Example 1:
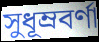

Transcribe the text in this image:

সুধূম্রবর্ণা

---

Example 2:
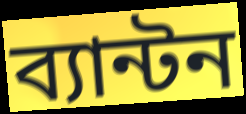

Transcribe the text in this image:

ব্যান্টন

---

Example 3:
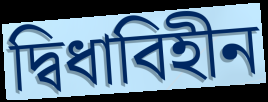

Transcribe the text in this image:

দ্বিধাবিহীন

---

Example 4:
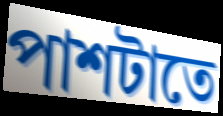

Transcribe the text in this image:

পাশটাতে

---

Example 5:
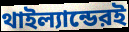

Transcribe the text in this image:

থাইল্যান্ডেরই